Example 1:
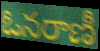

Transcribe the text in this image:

ఓనరాణీ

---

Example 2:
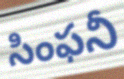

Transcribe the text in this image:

సింఫనీ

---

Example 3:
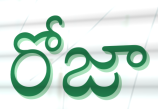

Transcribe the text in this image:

రోజా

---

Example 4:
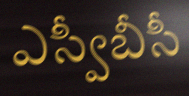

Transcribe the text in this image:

ఎస్వీబీసీ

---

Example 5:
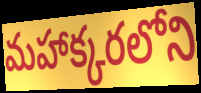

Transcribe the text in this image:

మహాక్కరలోని